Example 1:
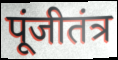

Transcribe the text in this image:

पूंजीतंत्र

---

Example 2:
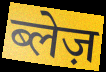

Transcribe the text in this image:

ब्लेज़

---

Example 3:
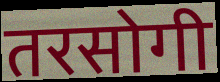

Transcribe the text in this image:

तरसोगी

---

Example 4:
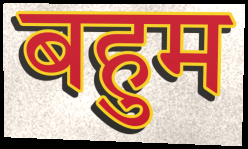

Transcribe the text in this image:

बहुम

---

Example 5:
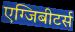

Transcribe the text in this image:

एग्जिबीटर्स